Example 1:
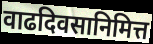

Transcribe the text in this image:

वाढदिवसानिमित्त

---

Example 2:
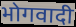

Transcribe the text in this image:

भोगवादी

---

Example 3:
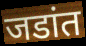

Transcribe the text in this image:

जडांत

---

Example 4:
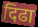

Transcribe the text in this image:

दिढा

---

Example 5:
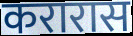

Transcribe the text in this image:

करारास